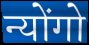
न्योंगो